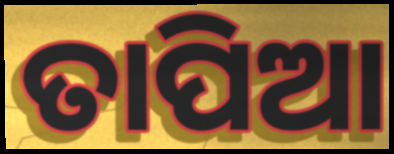
ତାପିଆ